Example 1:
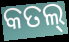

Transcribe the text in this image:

କତଲ୍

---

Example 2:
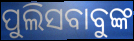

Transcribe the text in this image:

ପୁଲିସବାବୁଙ୍କ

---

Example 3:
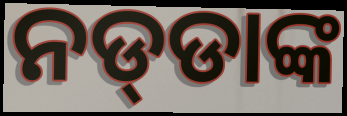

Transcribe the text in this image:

ନଡ୍‌ଡାଙ୍କ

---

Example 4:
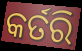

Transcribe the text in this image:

କର୍ତରି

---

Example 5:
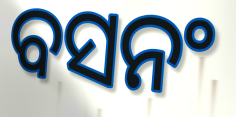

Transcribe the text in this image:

ବସନଂ